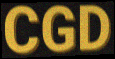
CGD